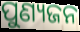
ପୁଣ୍ୟଜନ